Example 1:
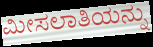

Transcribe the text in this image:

ಮೀಸಲಾತಿಯನ್ನು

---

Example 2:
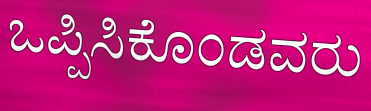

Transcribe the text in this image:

ಒಪ್ಪಿಸಿಕೊಂಡವರು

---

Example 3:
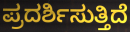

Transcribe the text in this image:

ಪ್ರದರ್ಶಿಸುತ್ತಿದೆ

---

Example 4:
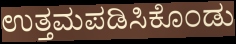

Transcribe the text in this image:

ಉತ್ತಮಪಡಿಸಿಕೊಂಡು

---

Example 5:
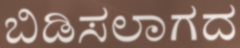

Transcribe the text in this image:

ಬಿಡಿಸಲಾಗದ